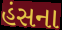
હંસના